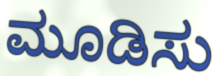
ಮೂಡಿಸು